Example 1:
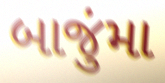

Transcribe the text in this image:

બાજુંમા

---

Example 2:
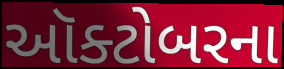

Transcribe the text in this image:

ઑક્ટોબરના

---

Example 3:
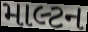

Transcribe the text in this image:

માલ્ટન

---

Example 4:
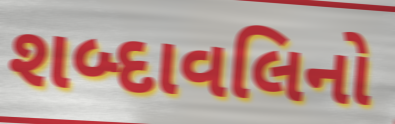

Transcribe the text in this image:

શબ્દાવલિનો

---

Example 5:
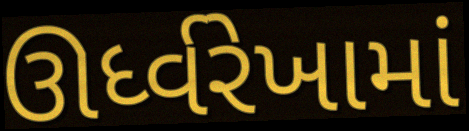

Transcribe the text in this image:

ઊર્ધ્વરેખામાં